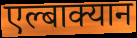
एल्बाक्यान